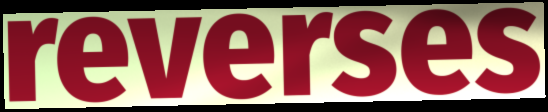
reverses